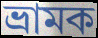
ভ্রামক